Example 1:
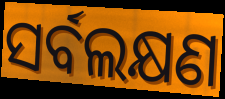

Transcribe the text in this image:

ସର୍ବଲକ୍ଷଣ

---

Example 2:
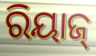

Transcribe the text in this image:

ରିୟାଜ୍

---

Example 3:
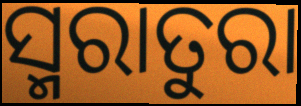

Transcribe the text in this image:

ସ୍ମରାତୁରା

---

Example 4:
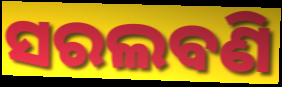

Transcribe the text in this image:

ସରଲବଣି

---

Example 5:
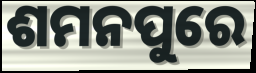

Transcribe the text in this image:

ଶମନପୁରେ